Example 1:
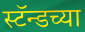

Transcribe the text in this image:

स्टॅन्डच्या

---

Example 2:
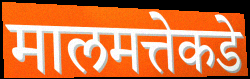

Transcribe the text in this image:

मालमत्तेकडे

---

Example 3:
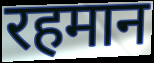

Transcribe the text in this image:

रहमान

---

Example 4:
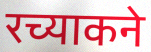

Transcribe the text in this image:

रच्याकने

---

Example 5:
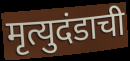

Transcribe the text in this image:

मृत्युदंडाची